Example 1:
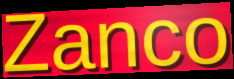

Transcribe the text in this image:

Zanco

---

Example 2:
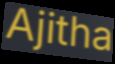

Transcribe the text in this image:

Ajitha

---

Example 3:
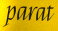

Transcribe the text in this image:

parat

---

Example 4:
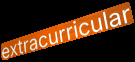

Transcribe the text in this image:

extracurricular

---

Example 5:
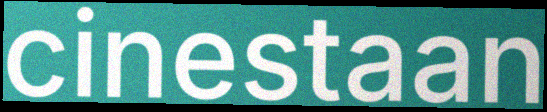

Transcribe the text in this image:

cinestaan